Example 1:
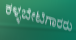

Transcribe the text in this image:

ಕಳ್ಳಬೇಟೆಗಾರರು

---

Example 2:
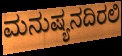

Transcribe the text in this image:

ಮನುಷ್ಯನದಿರಲಿ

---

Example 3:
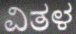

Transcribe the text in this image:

ವಿತಳ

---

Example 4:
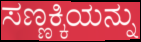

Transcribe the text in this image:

ಸಣ್ಣಕ್ಕಿಯನ್ನು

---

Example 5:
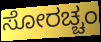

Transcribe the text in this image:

ಸೋರಚ್ಚಂ